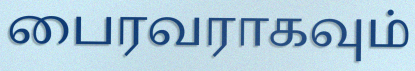
பைரவராகவும்